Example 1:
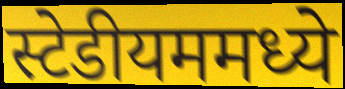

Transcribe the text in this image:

स्टेडीयममध्ये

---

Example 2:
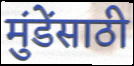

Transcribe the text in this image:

मुंडेंसाठी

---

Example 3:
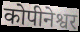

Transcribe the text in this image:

कोपीनेश्वर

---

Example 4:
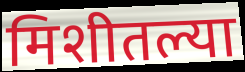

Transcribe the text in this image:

मिशीतल्या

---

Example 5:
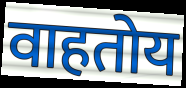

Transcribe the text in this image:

वाहतोय